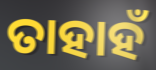
ତାହାହଁ